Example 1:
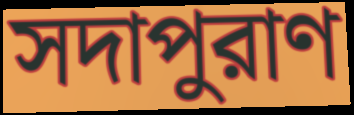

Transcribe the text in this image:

সদাপুরাণ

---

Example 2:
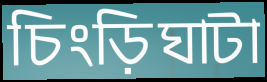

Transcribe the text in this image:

চিংড়িঘাটা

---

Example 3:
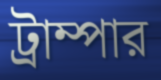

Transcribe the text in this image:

ট্রাম্পার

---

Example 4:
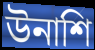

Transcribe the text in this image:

উনাশি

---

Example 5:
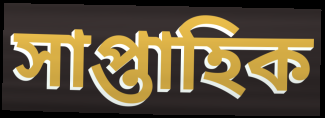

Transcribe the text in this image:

সাপ্তাহিক